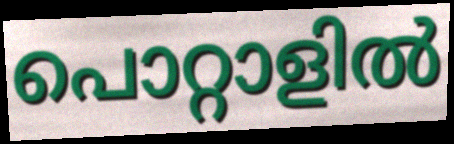
പൊറ്റാളിൽ